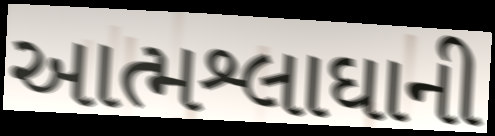
આત્મશ્લાઘાની